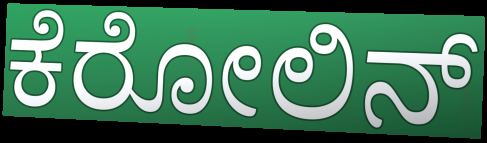
ಕೆರೋಲಿನ್